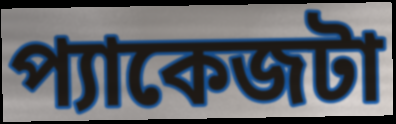
প্যাকেজটা